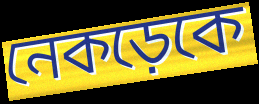
নেকড়েকে